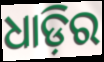
ଧାଡ଼ିର